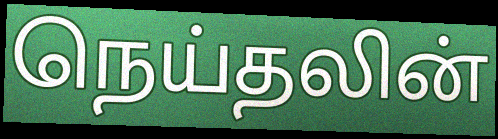
நெய்தலின்